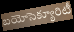
బయోసెక్యూరిటీ